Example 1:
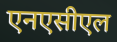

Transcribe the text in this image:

एनएसीएल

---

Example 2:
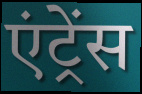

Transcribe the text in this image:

एंट्रेंस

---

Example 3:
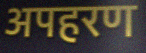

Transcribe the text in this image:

अपहरण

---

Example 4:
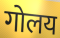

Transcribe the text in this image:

गोलय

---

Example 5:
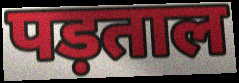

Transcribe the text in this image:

पड़ताल